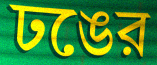
ঢঙের